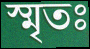
স্মৃতঃ